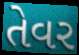
તેવર